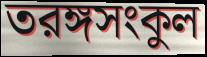
তরঙ্গসংকুল